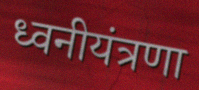
ध्वनीयंत्रणा